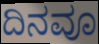
ದಿನವೂ